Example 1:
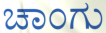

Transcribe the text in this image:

ಚಾಂಗು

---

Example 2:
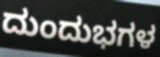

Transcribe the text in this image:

ದುಂದುಭಗಳ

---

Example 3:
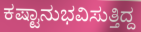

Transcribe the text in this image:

ಕಷ್ಟಾನುಭವಿಸುತ್ತಿದ್ದ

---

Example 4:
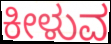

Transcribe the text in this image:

ಕೀಳುವ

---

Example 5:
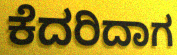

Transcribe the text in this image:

ಕೆದರಿದಾಗ